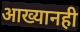
आख्यानही